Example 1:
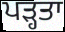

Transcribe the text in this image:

ਪੜ੍ਹਤਾ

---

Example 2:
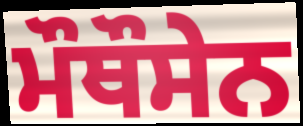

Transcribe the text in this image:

ਮੌਥੌਸੇਨ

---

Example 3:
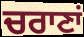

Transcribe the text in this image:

ਚਰਾਣਾਂ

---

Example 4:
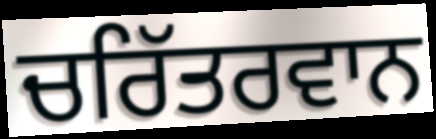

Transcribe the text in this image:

ਚਰਿੱਤਰਵਾਨ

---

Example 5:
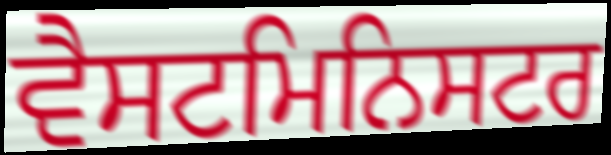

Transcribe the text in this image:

ਵੈਸਟਮਿਨਿਸਟਰ